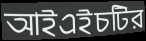
আইএইচটির